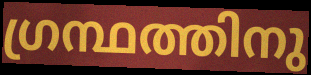
ഗ്രന്ഥത്തിനു